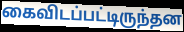
கைவிடப்பட்டிருந்தன